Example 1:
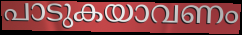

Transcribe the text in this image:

പാടുകയാവണം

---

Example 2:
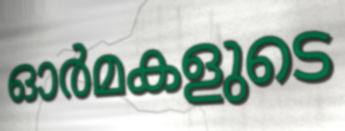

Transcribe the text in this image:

ഓർമകളുടെ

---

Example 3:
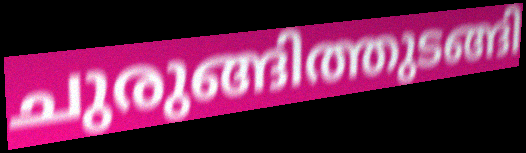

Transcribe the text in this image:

ചുരുങ്ങിത്തുടങ്ങി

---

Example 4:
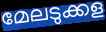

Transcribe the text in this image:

മേലടുക്കള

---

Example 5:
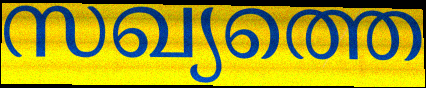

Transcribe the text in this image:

സഖ്യത്തെ